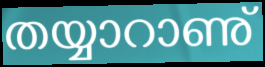
തയ്യാറാണു്